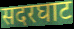
सदरघाट